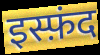
इस्फ़ंद